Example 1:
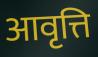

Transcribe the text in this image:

आवृत्ति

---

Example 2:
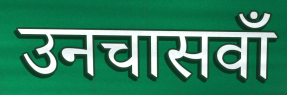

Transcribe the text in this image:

उनचासवाँ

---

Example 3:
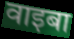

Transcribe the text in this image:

वाइबा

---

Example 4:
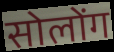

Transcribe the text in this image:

सोलोंग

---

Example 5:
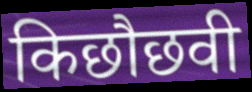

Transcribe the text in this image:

किछौछवी